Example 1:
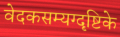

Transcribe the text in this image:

वेदकसम्यग्दृष्टिके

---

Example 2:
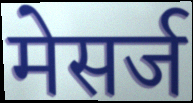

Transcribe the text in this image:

मेसर्ज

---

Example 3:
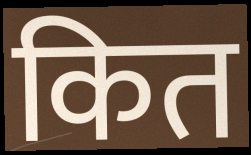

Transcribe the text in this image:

कित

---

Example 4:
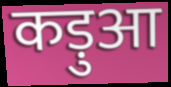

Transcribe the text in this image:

कड़ुआ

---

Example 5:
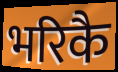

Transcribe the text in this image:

भरिकै